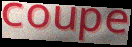
coupe